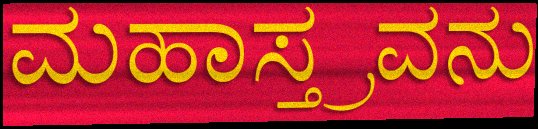
ಮಹಾಸ್ತ್ರವನು